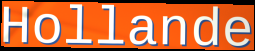
Hollande